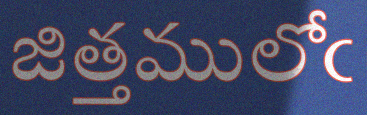
జిత్తములోఁ